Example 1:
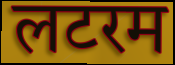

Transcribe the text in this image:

लटरम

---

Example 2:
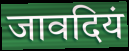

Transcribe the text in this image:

जावदियं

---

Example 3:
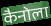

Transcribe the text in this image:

कैनोला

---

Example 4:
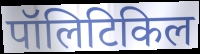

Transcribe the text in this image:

पॉलिटिकिल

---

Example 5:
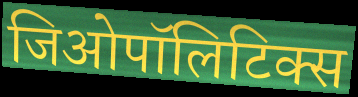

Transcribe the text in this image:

जिओपॉलिटिक्स